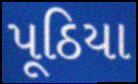
પૂઠિયા